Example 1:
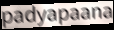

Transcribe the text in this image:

padyapaana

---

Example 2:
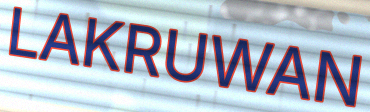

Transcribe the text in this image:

LAKRUWAN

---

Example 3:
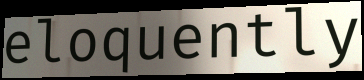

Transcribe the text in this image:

eloquently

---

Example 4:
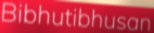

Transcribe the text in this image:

Bibhutibhusan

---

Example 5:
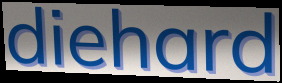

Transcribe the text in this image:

diehard